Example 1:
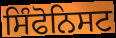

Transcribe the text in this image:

ਸਿੰਫੋਨਿਸਟ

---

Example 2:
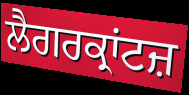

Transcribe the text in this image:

ਲੈਗਰਕ੍ਰਾਂਟਜ਼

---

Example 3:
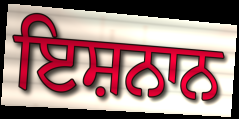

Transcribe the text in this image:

ਇਸ਼ਨਾਨ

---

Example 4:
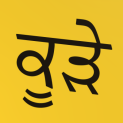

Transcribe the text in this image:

ਕੂੜੇ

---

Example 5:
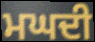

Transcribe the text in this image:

ਮਘਦੀ